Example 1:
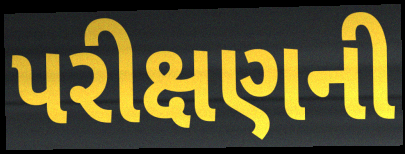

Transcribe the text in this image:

પરીક્ષણની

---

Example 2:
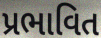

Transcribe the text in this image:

પ્રભાવિત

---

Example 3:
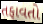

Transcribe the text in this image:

તફાવતો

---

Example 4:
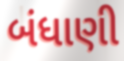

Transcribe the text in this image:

બંધાણી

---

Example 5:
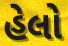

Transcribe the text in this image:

હેલો